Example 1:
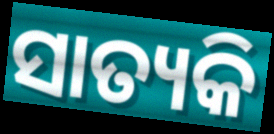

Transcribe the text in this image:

ସାତ୍ୟକି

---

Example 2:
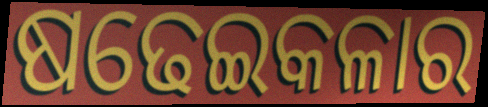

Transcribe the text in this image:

ଷଢେଇକଳାର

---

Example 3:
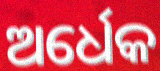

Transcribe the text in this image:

ଅର୍ଧେକ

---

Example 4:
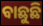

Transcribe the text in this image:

ବାଛୁଛି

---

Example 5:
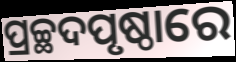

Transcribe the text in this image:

ପ୍ରଚ୍ଛଦପୃଷ୍ଠାରେ